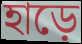
হাড়ে